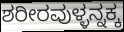
ಶರೀರವುಳ್ಳನ್ನಕ್ಕ